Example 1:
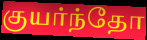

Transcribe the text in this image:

குயர்ந்தோ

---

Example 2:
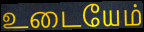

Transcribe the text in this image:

உடையேம்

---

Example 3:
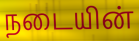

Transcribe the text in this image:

நடையின்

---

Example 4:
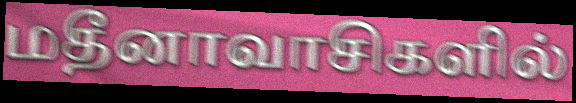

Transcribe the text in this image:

மதீனாவாசிகளில்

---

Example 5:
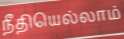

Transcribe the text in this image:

நீதியெல்லாம்